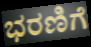
ಭರಣಿಗೆ